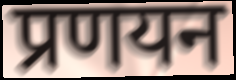
प्रणयन